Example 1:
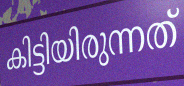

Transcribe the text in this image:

കിട്ടിയിരുന്നത്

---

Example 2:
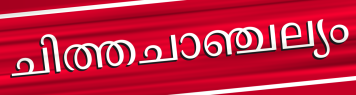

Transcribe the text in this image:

ചിത്തചാഞ്ചല്യം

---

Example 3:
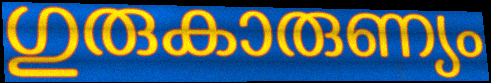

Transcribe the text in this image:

ഗുരുകാരുണ്യം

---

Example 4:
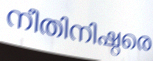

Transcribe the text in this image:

നീതിനിഷ്ഠരെ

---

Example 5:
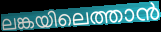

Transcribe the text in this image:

ലങ്കയിലെത്താൻ